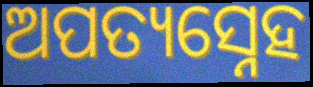
ଅପତ୍ୟସ୍ନେହ